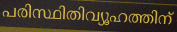
പരിസ്ഥിതിവ്യൂഹത്തിന്